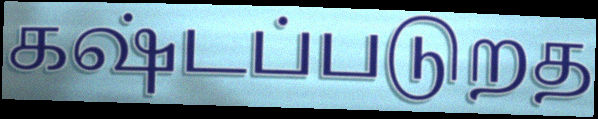
கஷ்டப்படுறத